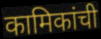
कामिकांची